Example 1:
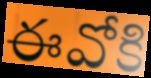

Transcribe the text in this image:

ఈవోకి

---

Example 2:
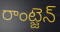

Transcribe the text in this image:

రాంట్జెన్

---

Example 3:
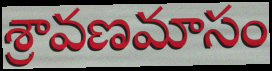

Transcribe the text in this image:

శ్రావణమాసం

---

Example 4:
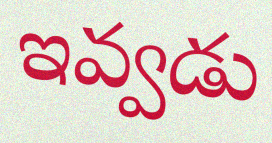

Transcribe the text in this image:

ఇవ్వడు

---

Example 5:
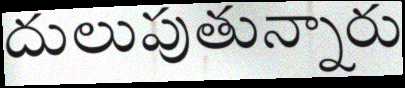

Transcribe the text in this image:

దులుపుతున్నారు